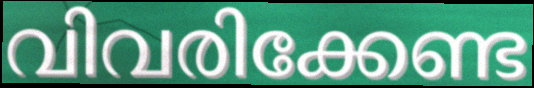
വിവരിക്കേണ്ട